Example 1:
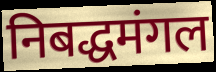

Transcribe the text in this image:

निबद्धमंगल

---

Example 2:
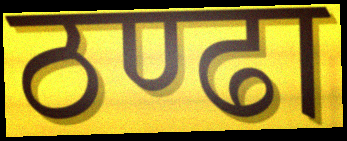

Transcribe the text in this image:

ठण्ढा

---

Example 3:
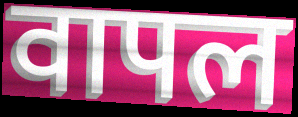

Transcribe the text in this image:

वापल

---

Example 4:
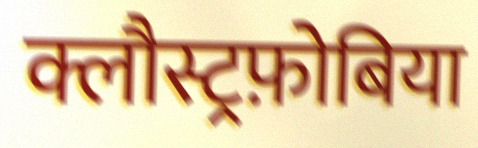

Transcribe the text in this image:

क्लौस्ट्रफ़ोबिया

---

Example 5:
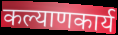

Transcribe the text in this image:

कल्याणकार्य